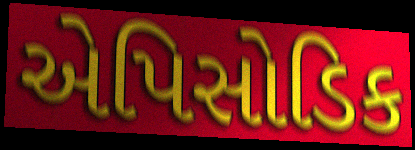
એપિસોડિક